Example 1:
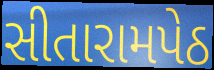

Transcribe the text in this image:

સીતારામપેઠ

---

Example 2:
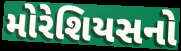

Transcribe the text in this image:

મોરેશિયસનો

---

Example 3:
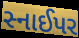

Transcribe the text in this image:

સ્નાઈપર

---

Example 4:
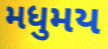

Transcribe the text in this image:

મધુમય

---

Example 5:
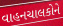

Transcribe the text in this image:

વાહનચાલકોને